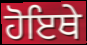
ਹੋਇਥੇ